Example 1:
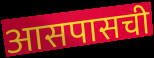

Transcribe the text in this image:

आसपासची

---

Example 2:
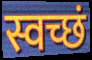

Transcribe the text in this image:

स्वच्छं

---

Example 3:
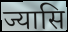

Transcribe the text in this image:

ज्यासि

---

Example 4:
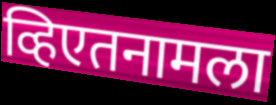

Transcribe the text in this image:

व्हिएतनामला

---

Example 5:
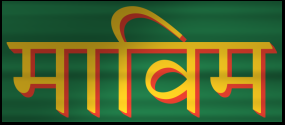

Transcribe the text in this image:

माविम